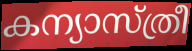
കന്യാസ്ത്രീ